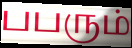
பபரும்